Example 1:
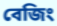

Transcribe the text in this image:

বেজিং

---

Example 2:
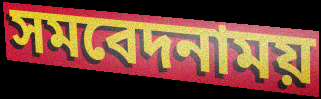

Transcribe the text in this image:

সমবেদনাময়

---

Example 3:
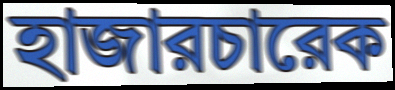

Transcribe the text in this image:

হাজারচারেক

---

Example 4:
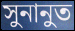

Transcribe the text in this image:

সুনানুত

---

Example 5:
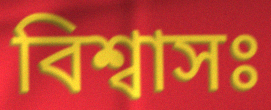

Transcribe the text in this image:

বিশ্বাসঃ